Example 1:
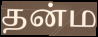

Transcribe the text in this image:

தன்ம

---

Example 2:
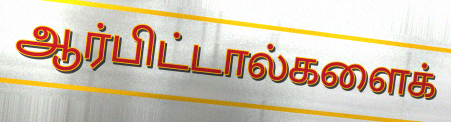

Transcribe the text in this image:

ஆர்பிட்டால்களைக்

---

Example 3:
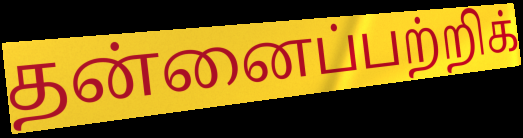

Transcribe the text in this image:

தன்னைப்பற்றிக்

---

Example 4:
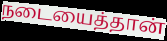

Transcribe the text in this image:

நடையைத்தான்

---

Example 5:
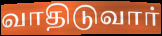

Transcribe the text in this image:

வாதிடுவார்